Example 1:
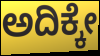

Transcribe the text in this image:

ಅದಿಕ್ಕೇ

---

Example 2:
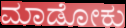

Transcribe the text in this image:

ಮಾಡೋಕು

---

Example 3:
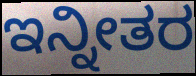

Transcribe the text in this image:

ಇನ್ನೀತರ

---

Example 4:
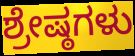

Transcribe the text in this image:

ಶ್ರೇಷ್ಠಗಳು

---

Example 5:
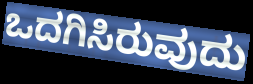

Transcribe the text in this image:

ಒದಗಿಸಿರುವುದು